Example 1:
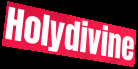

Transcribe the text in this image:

Holydivine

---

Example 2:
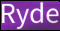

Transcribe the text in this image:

Ryde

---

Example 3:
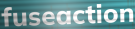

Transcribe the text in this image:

fuseaction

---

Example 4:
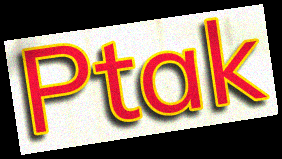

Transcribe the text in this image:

Ptak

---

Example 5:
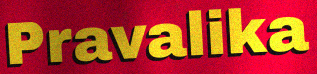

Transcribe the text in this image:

Pravalika